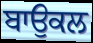
ਬਾਉਕਲ